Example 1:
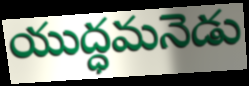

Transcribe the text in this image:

యుద్ధమనెడు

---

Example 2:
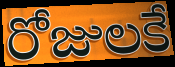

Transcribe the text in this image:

రోజులకే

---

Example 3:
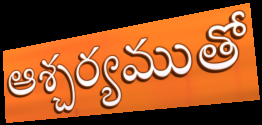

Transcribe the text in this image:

ఆశ్చర్యముతో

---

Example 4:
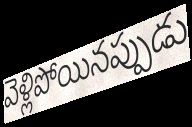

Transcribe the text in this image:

వెళ్లిపోయినప్పుడు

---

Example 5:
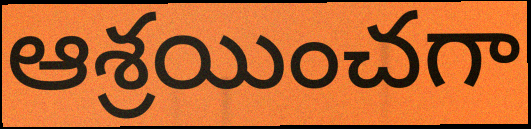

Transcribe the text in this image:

ఆశ్రయించగా